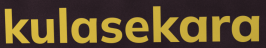
kulasekara